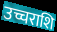
उच्चराशि